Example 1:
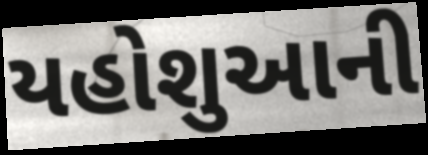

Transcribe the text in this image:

યહોશુઆની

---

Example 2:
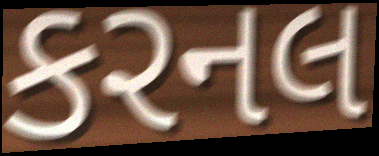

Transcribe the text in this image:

કરનલ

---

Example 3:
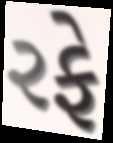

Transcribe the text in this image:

રફે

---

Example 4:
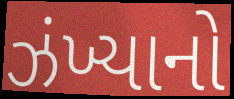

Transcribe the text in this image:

ઝંખ્યાનો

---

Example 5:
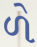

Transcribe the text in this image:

ળે